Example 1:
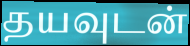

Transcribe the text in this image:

தயவுடன்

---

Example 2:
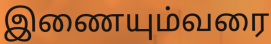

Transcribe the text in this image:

இணையும்வரை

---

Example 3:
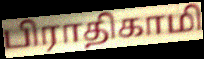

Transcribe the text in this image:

பிராதிகாமி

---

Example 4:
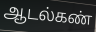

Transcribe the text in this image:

ஆடல்கண்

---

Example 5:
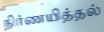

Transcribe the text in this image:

நிர்ணயித்தல்